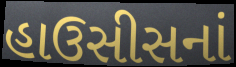
હાઉસીસનાં